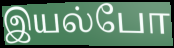
இயல்போ